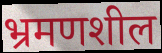
भ्रमणशील